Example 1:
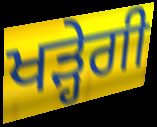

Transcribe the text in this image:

ਖੜ੍ਹੇਗੀ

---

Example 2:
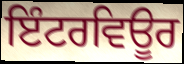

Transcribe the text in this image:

ਇੰਟਰਵਿਊਰ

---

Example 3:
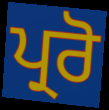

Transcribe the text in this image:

ਪ੍ਰਰੋ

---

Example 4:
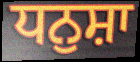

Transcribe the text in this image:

ਧਨੁਸ਼ਾ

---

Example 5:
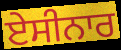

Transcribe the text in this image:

ਏਸੀਨਾਰ